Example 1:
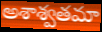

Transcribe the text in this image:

అశాశ్వతమా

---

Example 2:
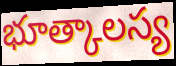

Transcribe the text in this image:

భూత్కాలస్య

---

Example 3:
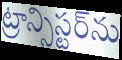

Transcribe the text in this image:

ట్రాన్సిస్టర్‌ను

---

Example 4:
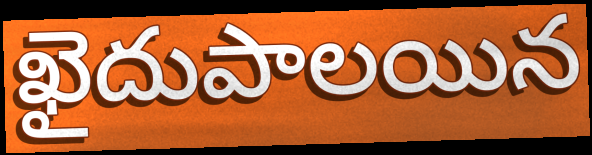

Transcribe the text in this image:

ఖైదుపాలయిన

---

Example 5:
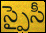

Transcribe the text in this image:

స్పైసీ